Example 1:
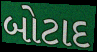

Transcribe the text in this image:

બોટાદ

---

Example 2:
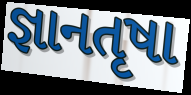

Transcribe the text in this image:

જ્ઞાનતૃષા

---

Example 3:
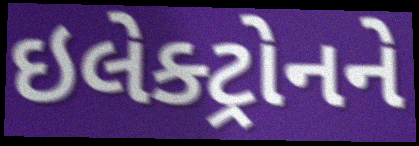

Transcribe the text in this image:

ઇલેક્ટ્રોનને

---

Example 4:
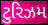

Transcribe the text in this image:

ટુરિઝમ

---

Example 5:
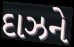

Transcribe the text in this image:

દાઝને